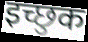
इच्छुक